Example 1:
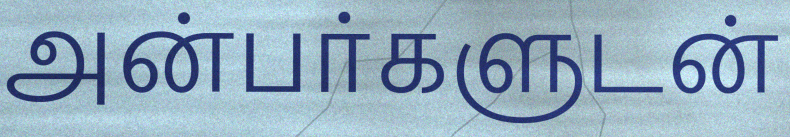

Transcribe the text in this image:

அன்பர்களுடன்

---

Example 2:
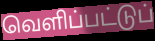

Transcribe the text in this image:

வெளிப்பட்டுப்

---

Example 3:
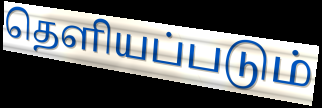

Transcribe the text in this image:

தெளியப்படும்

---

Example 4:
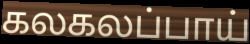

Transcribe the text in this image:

கலகலப்பாய்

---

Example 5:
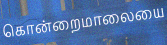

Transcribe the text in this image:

கொன்றைமாலையை